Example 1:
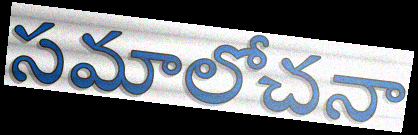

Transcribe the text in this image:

సమాలోచనా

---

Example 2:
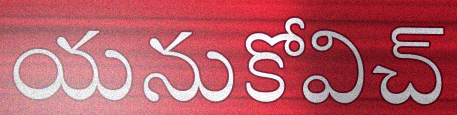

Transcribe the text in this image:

యనుకోవిచ్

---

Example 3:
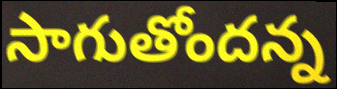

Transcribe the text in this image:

సాగుతోందన్న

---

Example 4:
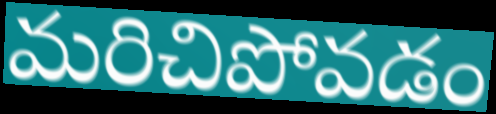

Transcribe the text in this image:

మరిచిపోవడం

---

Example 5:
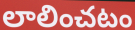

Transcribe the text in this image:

లాలించటం